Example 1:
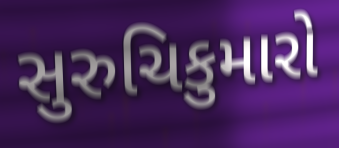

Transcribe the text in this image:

સુરુચિકુમારો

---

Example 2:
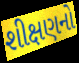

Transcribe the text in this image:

શીક્ષણનો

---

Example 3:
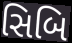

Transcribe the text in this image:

સિબિ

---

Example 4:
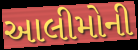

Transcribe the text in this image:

આલીમોની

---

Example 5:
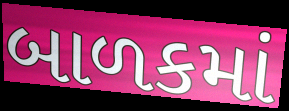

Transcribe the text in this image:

બાળકમાં